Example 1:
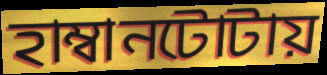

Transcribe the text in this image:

হাম্বানটোটায়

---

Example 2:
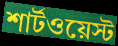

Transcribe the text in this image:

শার্টওয়েস্ট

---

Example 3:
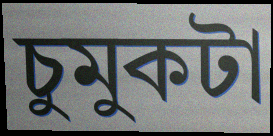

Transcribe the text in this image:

চুমুকটা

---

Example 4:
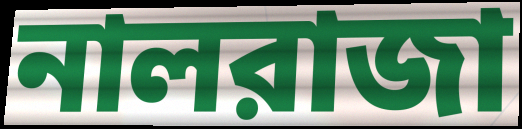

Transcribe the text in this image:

নালরাজা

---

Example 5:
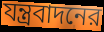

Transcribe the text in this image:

যন্ত্রবাদনের